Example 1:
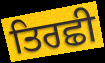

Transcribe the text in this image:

ਤਿਰਛੀ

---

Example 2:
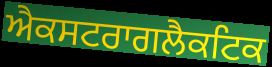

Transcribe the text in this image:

ਐਕਸਟਰਾਗਲੈਕਟਿਕ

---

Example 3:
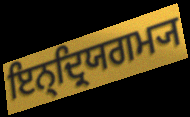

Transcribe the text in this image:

ਇਨ੍ਦ੍ਰਿਯਗਮ੍ਯ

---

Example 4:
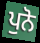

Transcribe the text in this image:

ਪੁਨੋ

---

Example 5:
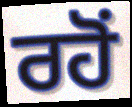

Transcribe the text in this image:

ਰਹੋਂ